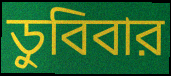
ডুবিবার